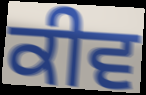
ਕੀਵ